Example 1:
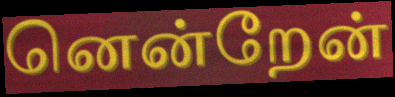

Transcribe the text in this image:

னென்றேன்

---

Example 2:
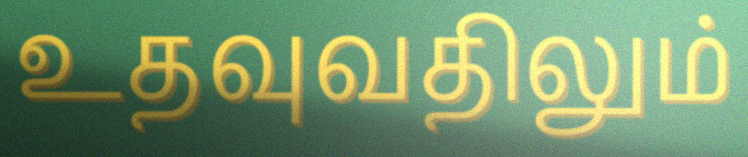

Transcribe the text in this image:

உதவுவதிலும்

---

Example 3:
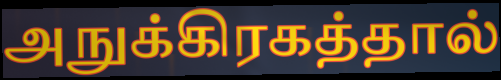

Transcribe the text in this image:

அநுக்கிரகத்தால்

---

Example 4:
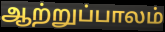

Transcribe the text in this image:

ஆற்றுப்பாலம்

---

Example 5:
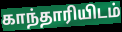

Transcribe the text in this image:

காந்தாரியிடம்